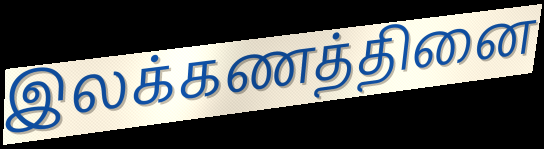
இலக்கணத்தினை